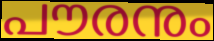
പൗരനും